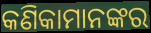
କଣିକାମାନଙ୍କର